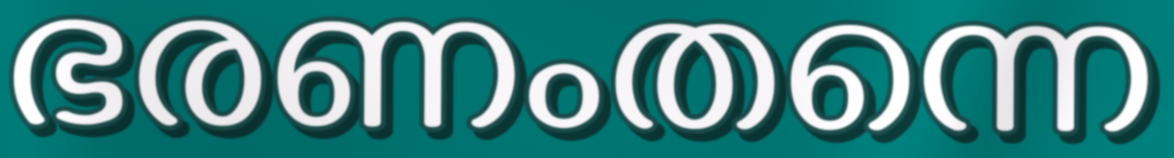
ഭരണംതന്നെ